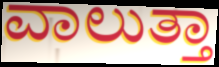
ವಾಲುತ್ತಾ